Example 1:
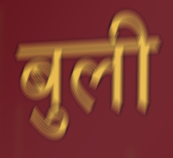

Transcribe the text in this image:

बुली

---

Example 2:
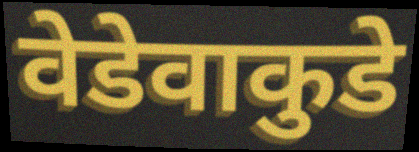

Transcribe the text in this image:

वेडेवाकुडे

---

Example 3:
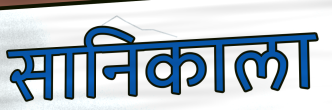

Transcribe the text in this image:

सानिकाला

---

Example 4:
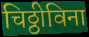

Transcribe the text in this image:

चिठ्ठीविना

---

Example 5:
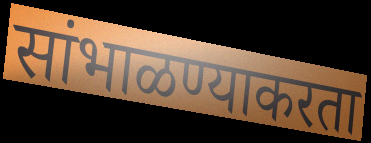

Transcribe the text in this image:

सांभाळण्याकरता